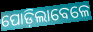
ପୋଡ଼ିଲାବେଳେ